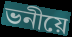
ভনীয়ে